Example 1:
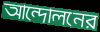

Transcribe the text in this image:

আন্দোলনের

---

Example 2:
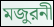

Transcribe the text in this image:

মজুরনী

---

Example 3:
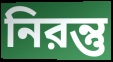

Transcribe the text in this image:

নিরন্তু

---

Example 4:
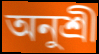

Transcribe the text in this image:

অনুশ্রী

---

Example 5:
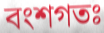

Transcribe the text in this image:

বংশগতঃ